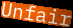
Unfair